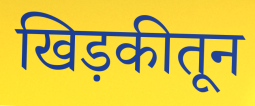
खिड़कीतून